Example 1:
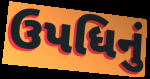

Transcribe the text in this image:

ઉપધિનું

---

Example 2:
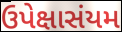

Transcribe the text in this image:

ઉપેક્ષાસંયમ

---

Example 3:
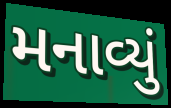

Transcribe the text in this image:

મનાવ્યું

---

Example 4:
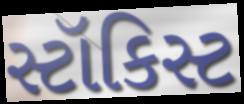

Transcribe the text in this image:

સ્ટૉકિસ્ટ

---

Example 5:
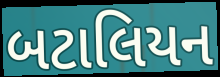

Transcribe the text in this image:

બટાલિયન